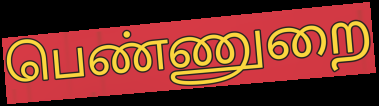
பெண்ணுறை